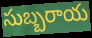
సుబ్బరాయ